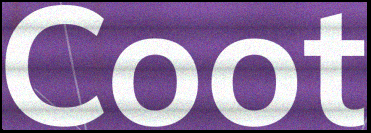
Coot